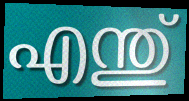
എന്തു്